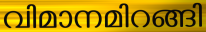
വിമാനമിറങ്ങി